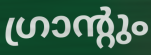
ഗ്രാന്റും